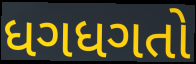
ધગધગતો